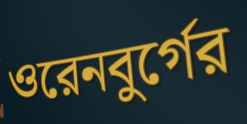
ওরেনবুর্গের